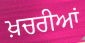
ਖ਼ਚਰੀਆਂ